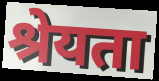
श्रेयता